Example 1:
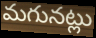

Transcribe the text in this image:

మగునట్లు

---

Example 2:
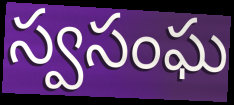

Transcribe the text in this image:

స్వసంఘ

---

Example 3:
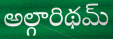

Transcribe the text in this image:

అల్గారిథమ్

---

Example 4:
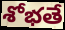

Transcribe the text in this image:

శోభతే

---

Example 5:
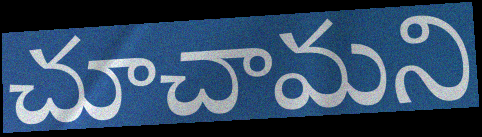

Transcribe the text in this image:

చూచామని